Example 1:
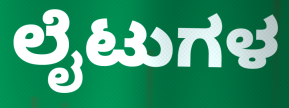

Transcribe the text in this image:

ಲೈಟುಗಳ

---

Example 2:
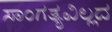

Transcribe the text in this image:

ಸಾಂಗತ್ಯವಿಲ್ಲದ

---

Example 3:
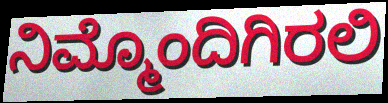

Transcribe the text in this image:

ನಿಮ್ಮೊಂದಿಗಿರಲಿ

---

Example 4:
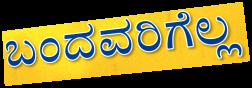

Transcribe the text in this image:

ಬಂದವರಿಗೆಲ್ಲ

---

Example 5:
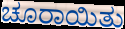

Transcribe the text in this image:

ಚೂರಾಯಿತು